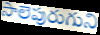
సాలెపురుగుని